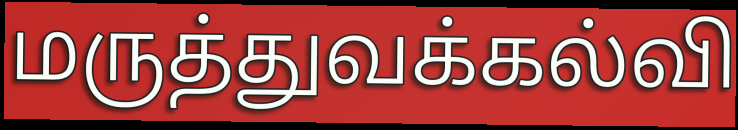
மருத்துவக்கல்வி